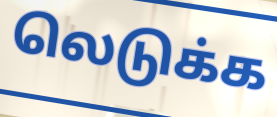
லெடுக்க